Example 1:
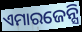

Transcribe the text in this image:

ଏମାରଜେନ୍ସି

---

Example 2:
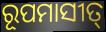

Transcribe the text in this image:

ରୂପମାସୀତ୍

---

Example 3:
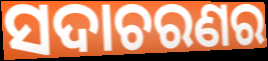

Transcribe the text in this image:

ସଦାଚରଣର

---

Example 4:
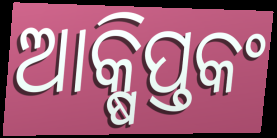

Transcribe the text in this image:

ଆକ୍ଷିପ୍ତକଂ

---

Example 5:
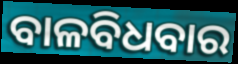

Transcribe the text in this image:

ବାଳବିଧବାର